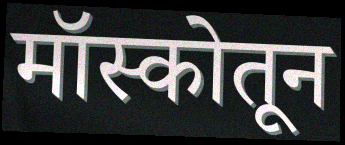
मॉस्कोतून